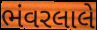
ભંવરલાલે